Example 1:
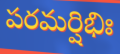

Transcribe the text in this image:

పరమర్షిభిః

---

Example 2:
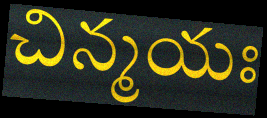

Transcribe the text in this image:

చిన్మయః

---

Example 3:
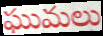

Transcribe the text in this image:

ఘుమలు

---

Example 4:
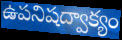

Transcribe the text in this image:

ఉపనిషద్వాక్యం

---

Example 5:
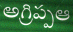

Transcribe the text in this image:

అగ్రిప్పఆ